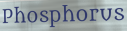
Phosphorus